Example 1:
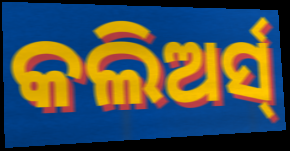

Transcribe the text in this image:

କଲିଅର୍ସ୍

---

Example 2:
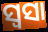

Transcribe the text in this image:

ସ୍ୱସା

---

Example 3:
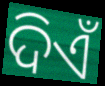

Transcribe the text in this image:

ଦିଏଁ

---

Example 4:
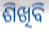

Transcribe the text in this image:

ଶିଖିବି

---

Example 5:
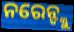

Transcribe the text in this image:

ନରେନ୍ଙ୍କୁ